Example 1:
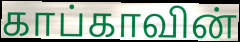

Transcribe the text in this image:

காப்காவின்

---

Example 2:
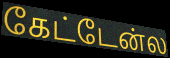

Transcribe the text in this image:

கேட்டேன்ல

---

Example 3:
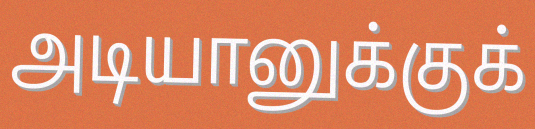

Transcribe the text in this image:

அடியானுக்குக்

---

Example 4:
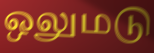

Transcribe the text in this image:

ஒலுமடு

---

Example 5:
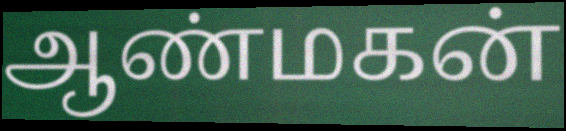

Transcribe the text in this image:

ஆண்மகன்